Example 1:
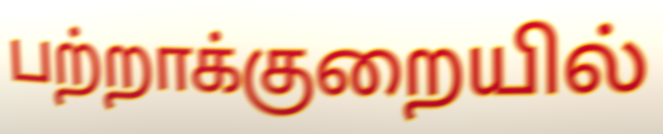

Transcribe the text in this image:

பற்றாக்குறையில்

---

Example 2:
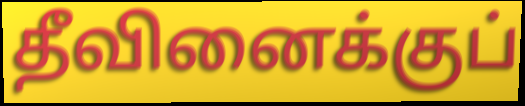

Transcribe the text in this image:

தீவினைக்குப்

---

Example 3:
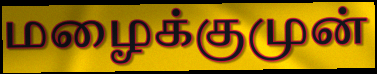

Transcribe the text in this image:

மழைக்குமுன்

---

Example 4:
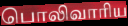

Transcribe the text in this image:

பொலிவாரிய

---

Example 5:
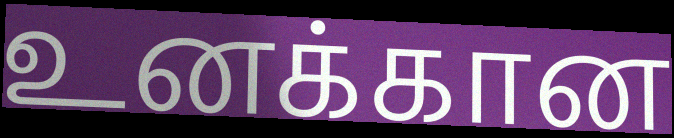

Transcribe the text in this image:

உனக்கான